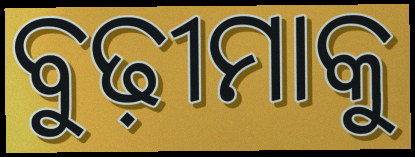
ବୁଢ଼ୀମାକୁ